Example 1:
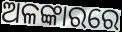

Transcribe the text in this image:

ଅଳଙ୍କାରରେ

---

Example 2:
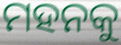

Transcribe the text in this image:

ମହନକୁ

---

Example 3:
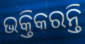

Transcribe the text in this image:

ଭକ୍ତିକରନ୍ତି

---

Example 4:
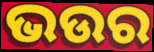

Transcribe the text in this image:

ଭଉର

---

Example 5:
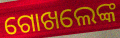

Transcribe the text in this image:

ଗୋଖଲେଙ୍କ